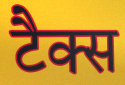
टैक्स